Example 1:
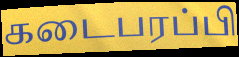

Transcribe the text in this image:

கடைபரப்பி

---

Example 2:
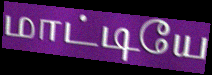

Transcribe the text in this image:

மாட்டியே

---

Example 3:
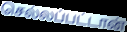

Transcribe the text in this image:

செல்லப்பட்டான்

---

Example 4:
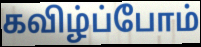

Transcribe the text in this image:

கவிழ்ப்போம்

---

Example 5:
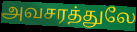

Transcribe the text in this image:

அவசரத்துலே